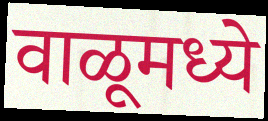
वाळूमध्ये